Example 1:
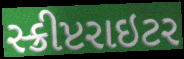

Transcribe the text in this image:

સ્ક્રીપ્ટરાઇટર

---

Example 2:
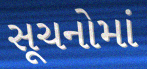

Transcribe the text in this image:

સૂચનોમાં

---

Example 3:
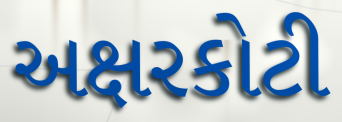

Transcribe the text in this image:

અક્ષરકોટી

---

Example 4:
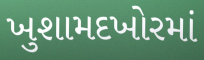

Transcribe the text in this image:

ખુશામદખોરમાં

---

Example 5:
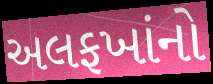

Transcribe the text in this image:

અલફખાંનો